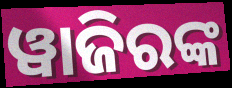
ୱାଜିରଙ୍କ